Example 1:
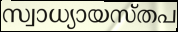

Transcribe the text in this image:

സ്വാധ്യായസ്തപ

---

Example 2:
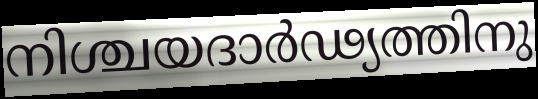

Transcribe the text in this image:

നിശ്ചയദാർഢ്യത്തിനു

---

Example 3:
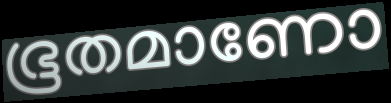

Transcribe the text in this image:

ഭൂതമാണോ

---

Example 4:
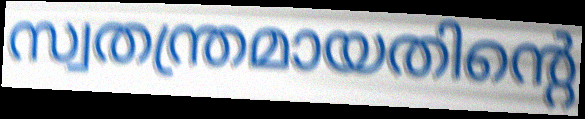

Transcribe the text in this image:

സ്വതന്ത്രമായതിന്റെ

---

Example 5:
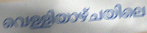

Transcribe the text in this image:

വെള്ളിയാഴ്ചയിലെ